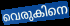
വെരുകിനെ